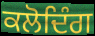
ਕਲੋਦਿੰਗ